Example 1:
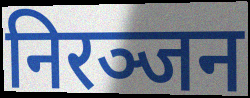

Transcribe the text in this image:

निरञ्जन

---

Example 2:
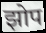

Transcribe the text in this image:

झोप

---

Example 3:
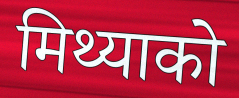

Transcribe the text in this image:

मिथ्याको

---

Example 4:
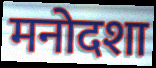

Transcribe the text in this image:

मनोदशा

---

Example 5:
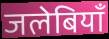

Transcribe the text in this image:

जलेबियाँ